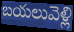
బయలువెళ్లి